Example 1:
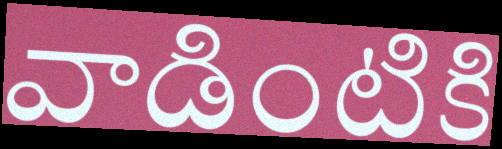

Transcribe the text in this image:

వాడింటికి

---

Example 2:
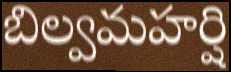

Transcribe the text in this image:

బిల్వమహర్షి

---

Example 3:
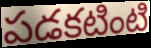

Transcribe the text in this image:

పడకటింటి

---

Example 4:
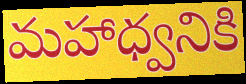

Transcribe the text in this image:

మహాధ్వనికి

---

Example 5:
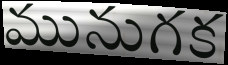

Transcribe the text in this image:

మునుగక